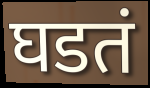
घडतं